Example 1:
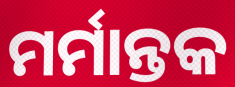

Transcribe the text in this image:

ମର୍ମାନ୍ତକ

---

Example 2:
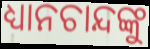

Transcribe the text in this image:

ଧ୍ୟାନଚାନ୍ଦଙ୍କୁ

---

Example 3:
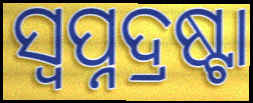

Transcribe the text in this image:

ସ୍ୱପ୍ନଦ୍ରଷ୍ଟା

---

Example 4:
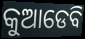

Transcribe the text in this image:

କୁଆଡେବି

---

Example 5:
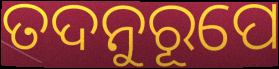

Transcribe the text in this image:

ତଦନୁରୂପେ